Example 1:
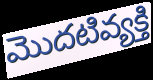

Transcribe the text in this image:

మొదటివ్యక్తి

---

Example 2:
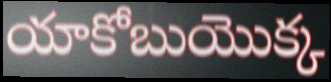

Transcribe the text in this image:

యాకోబుయొక్క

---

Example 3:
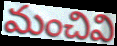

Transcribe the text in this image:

మంచివి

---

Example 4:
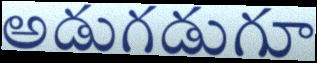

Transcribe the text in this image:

అడుగడుగూ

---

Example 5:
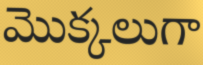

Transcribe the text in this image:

మొక్కలుగా